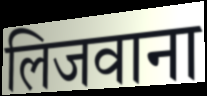
लिजवाना